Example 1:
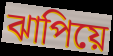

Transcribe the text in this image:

ঝাপিয়ে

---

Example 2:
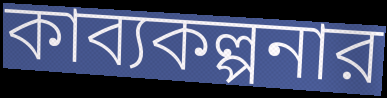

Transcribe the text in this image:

কাব্যকল্পনার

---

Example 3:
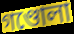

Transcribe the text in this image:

গণ্ডোলা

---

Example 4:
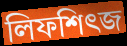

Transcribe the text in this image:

লিফশিৎজ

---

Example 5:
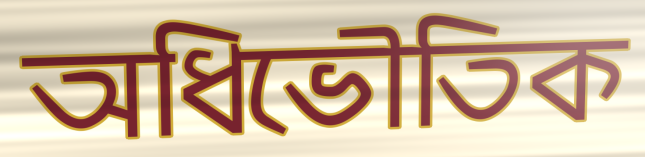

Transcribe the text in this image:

অধিভৌতিক